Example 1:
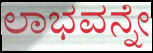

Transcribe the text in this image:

ಲಾಭವನ್ನೇ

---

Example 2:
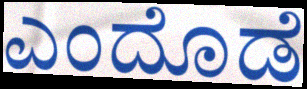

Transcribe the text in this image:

ಎಂದೊಡೆ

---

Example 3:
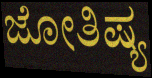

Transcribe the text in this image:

ಜೋತಿಷ್ಯ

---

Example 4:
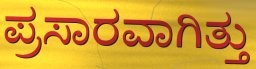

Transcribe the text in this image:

ಪ್ರಸಾರವಾಗಿತ್ತು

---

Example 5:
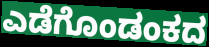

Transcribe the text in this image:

ಎಡೆಗೊಂಡಂಕದ